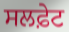
ਸਲਫ਼ੇਟ